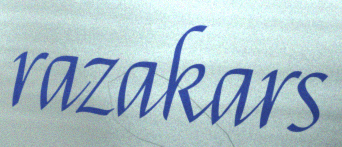
razakars